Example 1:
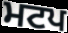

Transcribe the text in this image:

ਮਟਪ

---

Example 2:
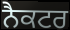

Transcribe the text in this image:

ਨੈਕਟਰ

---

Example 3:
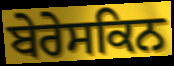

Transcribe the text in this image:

ਬੇਰੇਸਕਿਨ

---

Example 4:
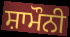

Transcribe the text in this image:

ਸ਼ਾਮੌਨੀ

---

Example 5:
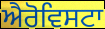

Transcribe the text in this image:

ਐਰੋਵਿਸਟਾ